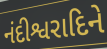
નંદીશ્વરાદિને